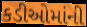
કડીઓમાંની